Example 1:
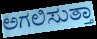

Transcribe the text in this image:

ಅಗಲಿಸುತ್ತಾ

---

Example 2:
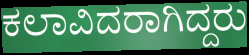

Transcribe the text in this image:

ಕಲಾವಿದರಾಗಿದ್ದರು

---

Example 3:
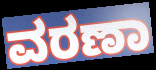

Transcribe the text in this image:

ವರಣಾ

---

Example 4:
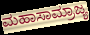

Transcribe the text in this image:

ಮಹಾಸಾಮ್ರಾಜ್ಯ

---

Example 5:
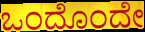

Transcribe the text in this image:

ಒಂದೊಂದೇ